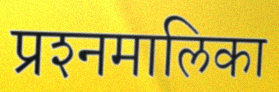
प्रश्नमालिका